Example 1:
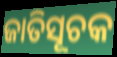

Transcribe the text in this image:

ଜାତିସୂଚକ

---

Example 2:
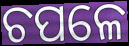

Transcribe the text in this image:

ଚପଳେ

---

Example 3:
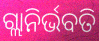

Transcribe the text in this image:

ଗ୍ଲାନିର୍ଭବତି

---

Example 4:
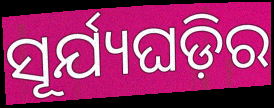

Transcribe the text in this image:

ସୂର୍ଯ୍ୟଘଡ଼ିର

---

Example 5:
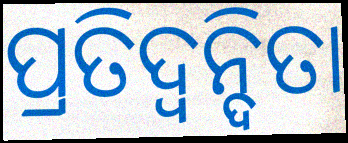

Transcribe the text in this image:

ପ୍ରତିଦ୍ଵନ୍ଦିତା